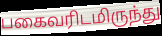
பகைவரிடமிருந்து